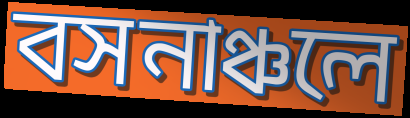
বসনাঞ্চলে